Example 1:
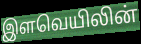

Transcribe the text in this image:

இளவெயிலின்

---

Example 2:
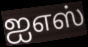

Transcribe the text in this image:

ஐஎஸ்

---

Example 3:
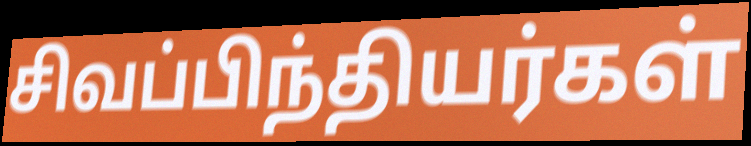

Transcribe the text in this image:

சிவப்பிந்தியர்கள்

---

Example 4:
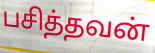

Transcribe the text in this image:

பசித்தவன்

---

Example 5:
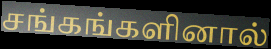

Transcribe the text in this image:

சங்கங்களினால்